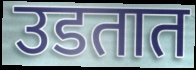
उडतात